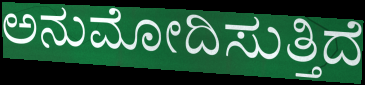
ಅನುಮೋದಿಸುತ್ತಿದೆ